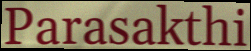
Parasakthi